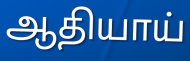
ஆதியாய்